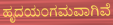
ಹೃದಯಂಗಮವಾಗಿವೆ